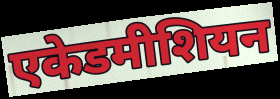
एकेडमीशियन